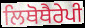
ਲਿਥੋਥੈਰੇਪੀ